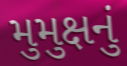
મુમુક્ષનું